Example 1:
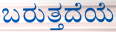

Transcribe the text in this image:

ಬರುತ್ತದೆಯೆ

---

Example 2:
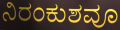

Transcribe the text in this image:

ನಿರಂಕುಶವೂ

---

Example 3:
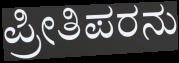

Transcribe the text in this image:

ಪ್ರೀತಿಪರನು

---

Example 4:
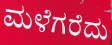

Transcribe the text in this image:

ಮಳೆಗರೆದು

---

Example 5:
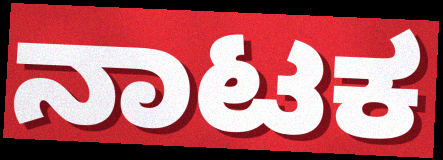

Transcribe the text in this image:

ನಾಟಕ